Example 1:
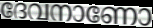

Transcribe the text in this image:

ദേവനാണോ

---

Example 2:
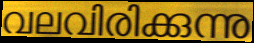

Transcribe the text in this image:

വലവിരിക്കുന്നു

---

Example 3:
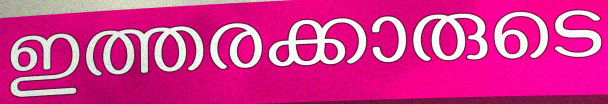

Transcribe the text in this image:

ഇത്തരക്കാരുടെ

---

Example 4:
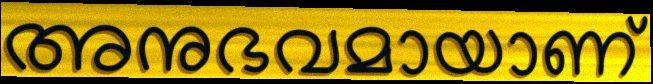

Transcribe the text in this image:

അനുഭവമായാണ്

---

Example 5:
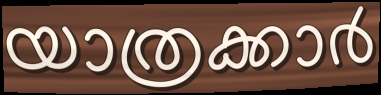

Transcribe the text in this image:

യാത്രക്കാർ